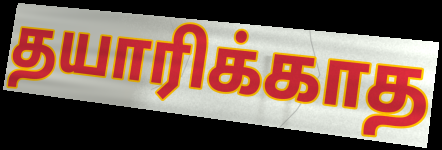
தயாரிக்காத